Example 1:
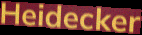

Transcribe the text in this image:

Heidecker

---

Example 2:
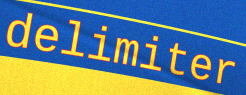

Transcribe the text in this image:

delimiter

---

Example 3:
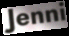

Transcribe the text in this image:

Jenni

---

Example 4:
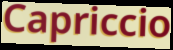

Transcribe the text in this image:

Capriccio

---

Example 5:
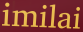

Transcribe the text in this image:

imilai